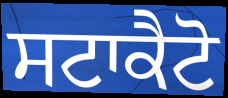
ਸਟਾਕੈਟੋ